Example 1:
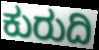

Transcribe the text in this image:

ಕುರುದಿ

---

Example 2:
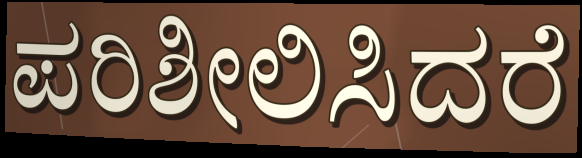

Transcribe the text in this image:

ಪರಿಶೀಲಿಸಿದರೆ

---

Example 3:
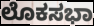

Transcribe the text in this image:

ಲೊಕಸಭಾ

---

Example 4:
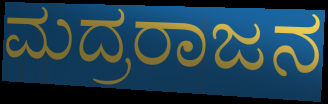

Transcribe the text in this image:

ಮದ್ರರಾಜನ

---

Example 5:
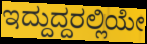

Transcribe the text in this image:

ಇದ್ದುದ್ದರಲ್ಲಿಯೇ